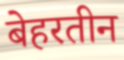
बेहरतीन